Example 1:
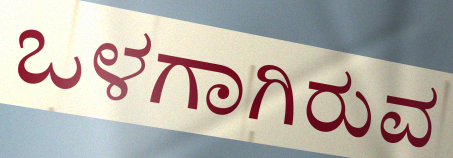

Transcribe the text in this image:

ಒಳಗಾಗಿರುವ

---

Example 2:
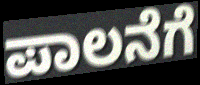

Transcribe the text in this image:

ಪಾಲನೆಗೆ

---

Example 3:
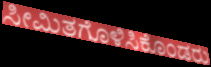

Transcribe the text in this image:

ಸೀಮಿತಗೊಳಿಸಿಕೊಂಡರು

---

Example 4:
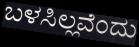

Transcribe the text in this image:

ಬಳಸಿಲ್ಲವೆಂದು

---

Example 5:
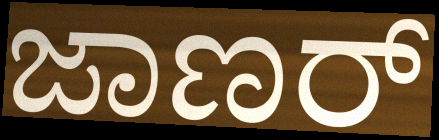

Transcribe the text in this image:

ಜಾಣರ್